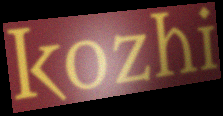
kozhi